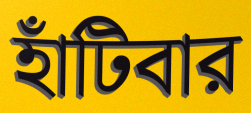
হাঁটিবার